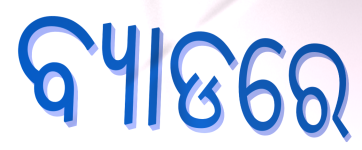
ବ୍ୟାଡରେ